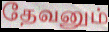
தேவனும்